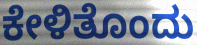
ಕೇಳಿತೊಂದು